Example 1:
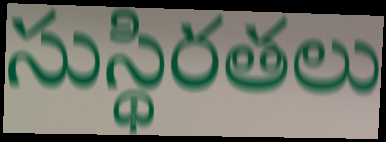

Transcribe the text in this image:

సుస్థిరతలు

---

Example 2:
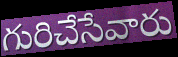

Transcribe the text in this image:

గురిచేసేవారు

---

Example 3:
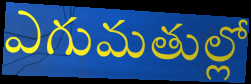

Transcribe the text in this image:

ఎగుమతుల్లో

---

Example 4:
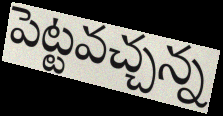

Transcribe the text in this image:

పెట్టవచ్చన్న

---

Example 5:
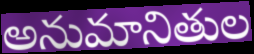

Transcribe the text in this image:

అనుమానితుల